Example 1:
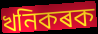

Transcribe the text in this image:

খনিকৰক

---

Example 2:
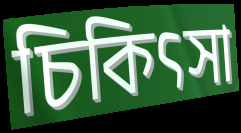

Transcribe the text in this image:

চিকিৎসা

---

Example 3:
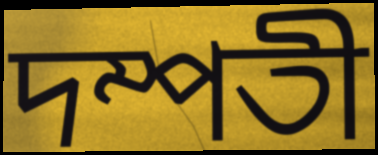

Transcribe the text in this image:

দম্পতী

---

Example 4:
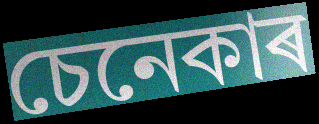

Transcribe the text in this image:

চেনেকাৰ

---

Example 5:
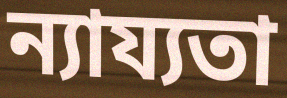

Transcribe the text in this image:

ন্যায্যতা